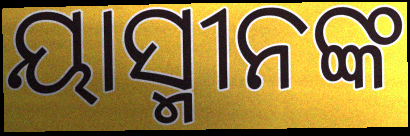
ୟାସ୍ମୀନଙ୍କ